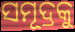
ସମୂଦ୍ରକୁ